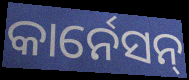
କାର୍ନେସନ୍